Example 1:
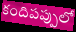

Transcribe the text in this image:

కందిపప్పులో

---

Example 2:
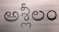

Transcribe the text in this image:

అశ్లీలం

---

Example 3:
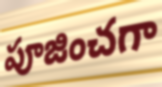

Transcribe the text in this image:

పూజించగా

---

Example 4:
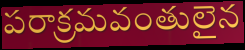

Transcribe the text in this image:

పరాక్రమవంతులైన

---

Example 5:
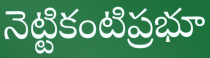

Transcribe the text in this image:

నెట్టికంటిప్రభూ